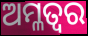
ଅମ୍ଳତ୍ଵର